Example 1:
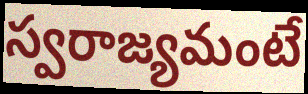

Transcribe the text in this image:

స్వరాజ్యమంటే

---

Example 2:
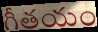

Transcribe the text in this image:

గీతయం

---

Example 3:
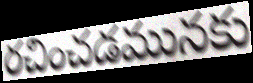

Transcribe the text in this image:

రచించడమునకు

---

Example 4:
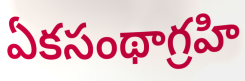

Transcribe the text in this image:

ఏకసంథాగ్రహి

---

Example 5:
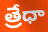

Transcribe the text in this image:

త్రేధా